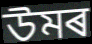
উমৰ